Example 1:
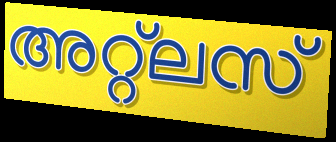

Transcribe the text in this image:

അറ്റ്ലസ്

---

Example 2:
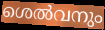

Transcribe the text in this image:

ശെൽവനും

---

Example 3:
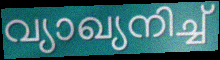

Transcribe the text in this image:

വ്യാഖ്യനിച്ച്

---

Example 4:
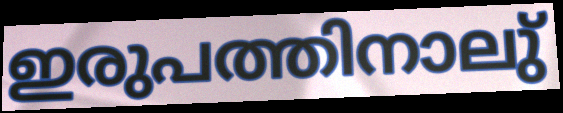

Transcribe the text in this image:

ഇരുപത്തിനാലു്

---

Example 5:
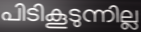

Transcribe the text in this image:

പിടികൂടുന്നില്ല